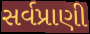
સર્વપ્રાણી